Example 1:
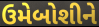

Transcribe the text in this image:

ઉમેબોશીને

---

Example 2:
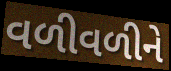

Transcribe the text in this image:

વળીવળીને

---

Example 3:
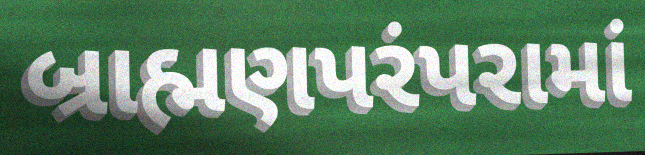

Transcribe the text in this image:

બ્રાહ્મણપરંપરામાં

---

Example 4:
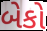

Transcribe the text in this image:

બેકો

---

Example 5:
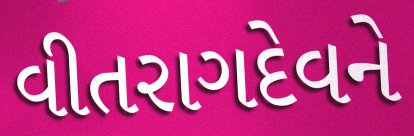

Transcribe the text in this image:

વીતરાગદેવને